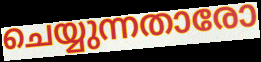
ചെയ്യുന്നതാരോ